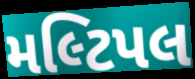
મલ્ટિપલ